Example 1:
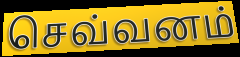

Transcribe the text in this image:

செவ்வனம்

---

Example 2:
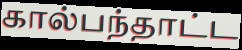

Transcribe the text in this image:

கால்பந்தாட்ட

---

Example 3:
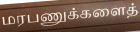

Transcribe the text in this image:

மரபணுக்களைத்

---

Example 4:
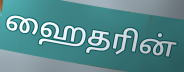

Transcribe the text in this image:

ஹைதரின்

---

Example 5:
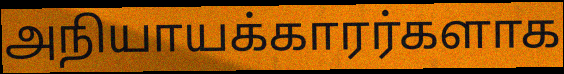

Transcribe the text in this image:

அநியாயக்காரர்களாக